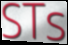
STs